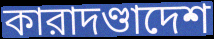
কারাদণ্ডাদেশ